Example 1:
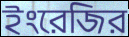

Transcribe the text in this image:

ইংরেজির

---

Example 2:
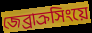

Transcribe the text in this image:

জেব্রাক্রসিংয়ে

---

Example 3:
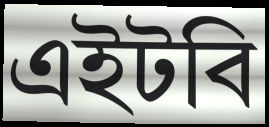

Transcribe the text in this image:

এইটবি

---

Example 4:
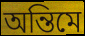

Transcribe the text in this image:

অন্তিমে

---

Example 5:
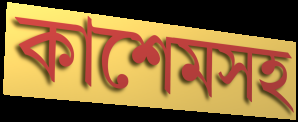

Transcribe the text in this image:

কাশেমসহ